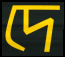
দে